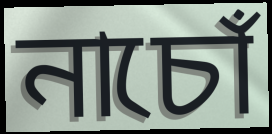
নাচোঁ